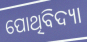
ପୋଥିବିଦ୍ୟା